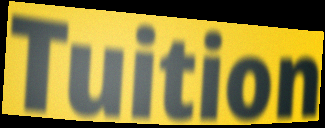
Tuition